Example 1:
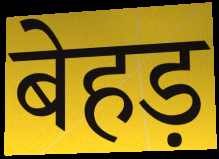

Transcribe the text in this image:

बेहड़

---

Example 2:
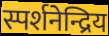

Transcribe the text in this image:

स्पर्शनेन्द्रिय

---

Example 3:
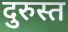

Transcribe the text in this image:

दुरुस्त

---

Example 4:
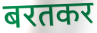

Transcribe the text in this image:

बरतकर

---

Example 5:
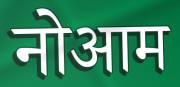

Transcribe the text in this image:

नोआम